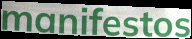
manifestos